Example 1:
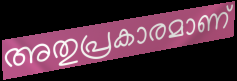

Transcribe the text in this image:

അതുപ്രകാരമാണ്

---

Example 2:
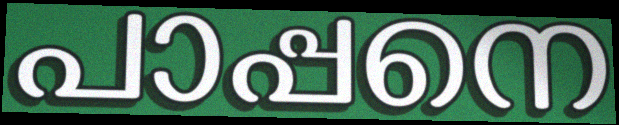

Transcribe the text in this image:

പാപ്പനെ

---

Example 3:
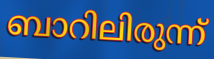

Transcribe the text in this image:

ബാറിലിരുന്ന്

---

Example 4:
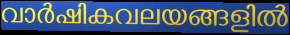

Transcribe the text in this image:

വാർഷികവലയങ്ങളിൽ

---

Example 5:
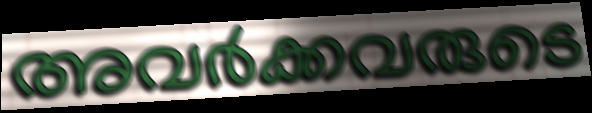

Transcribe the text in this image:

അവർക്കവരുടെ